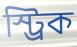
স্ট্রিক